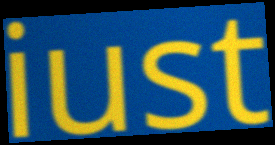
iust